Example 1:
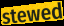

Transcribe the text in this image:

stewed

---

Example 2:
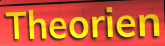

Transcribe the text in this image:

Theorien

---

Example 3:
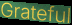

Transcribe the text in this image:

Grateful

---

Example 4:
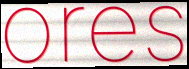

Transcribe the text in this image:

ores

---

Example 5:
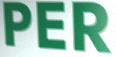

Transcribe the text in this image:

PER